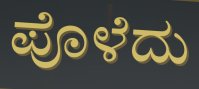
ಪೊಳೆದು